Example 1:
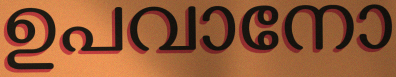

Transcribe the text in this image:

ഉപവാനോ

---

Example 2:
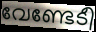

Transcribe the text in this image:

വേണ്ടേടീ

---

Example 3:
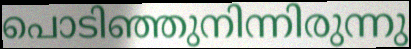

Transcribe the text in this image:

പൊടിഞ്ഞുനിന്നിരുന്നു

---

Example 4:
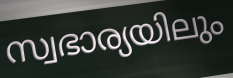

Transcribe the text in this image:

സ്വഭാര്യയിലും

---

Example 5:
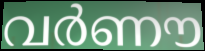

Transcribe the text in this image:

വർണൗ